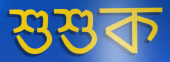
শুশুক